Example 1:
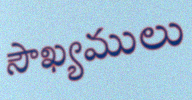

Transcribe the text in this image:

సౌఖ్యములు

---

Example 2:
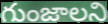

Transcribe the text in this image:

గుంజాలని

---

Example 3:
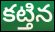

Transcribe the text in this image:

కట్తిన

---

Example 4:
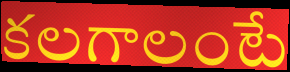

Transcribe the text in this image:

కలగాలంటే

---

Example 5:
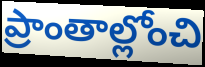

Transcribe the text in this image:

ప్రాంతాల్లోంచి